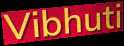
Vibhuti